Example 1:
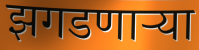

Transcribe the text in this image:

झगडणाऱ्या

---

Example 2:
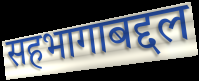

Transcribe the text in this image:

सहभागाबद्दल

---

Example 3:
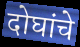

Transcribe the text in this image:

दोघांचे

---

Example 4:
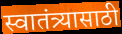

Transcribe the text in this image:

स्वातंत्र्यासाठी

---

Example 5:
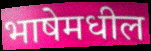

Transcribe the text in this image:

भाषेमधील